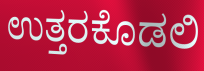
ಉತ್ತರಕೊಡಲಿ